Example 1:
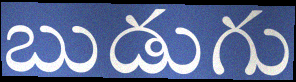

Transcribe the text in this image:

బుడుగు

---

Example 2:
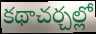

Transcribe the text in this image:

కథాచర్చల్లో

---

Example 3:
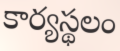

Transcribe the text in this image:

కార్యస్థలం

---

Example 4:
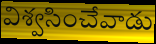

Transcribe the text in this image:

విశ్వసించేవాడు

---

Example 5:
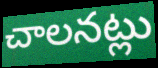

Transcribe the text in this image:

చాలనట్లు